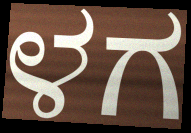
ಳಗ